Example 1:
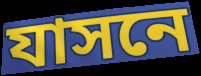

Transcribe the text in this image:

যাসনে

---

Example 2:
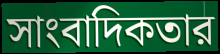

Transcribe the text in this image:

সাংবাদিকতার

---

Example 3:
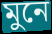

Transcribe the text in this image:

মুনে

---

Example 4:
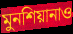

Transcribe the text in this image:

মুনশিয়ানাও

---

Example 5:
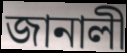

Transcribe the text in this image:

জানালী